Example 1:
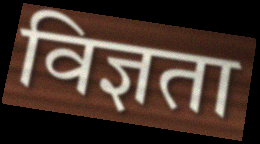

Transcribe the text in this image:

विज्ञता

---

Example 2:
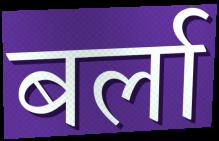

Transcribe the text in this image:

बर्ला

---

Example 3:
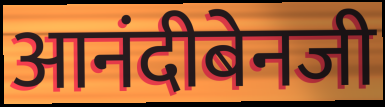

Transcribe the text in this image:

आनंदीबेनजी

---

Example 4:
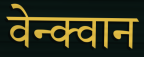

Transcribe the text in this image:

वेन्क्वान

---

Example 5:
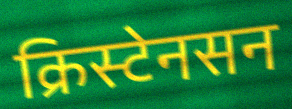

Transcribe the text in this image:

क्रिस्टेनसन